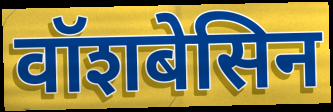
वॉशबेसिन